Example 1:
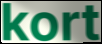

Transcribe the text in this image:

kort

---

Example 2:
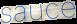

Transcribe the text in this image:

sauce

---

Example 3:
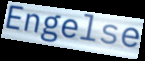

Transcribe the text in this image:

Engelse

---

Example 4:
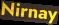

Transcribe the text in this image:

Nirnay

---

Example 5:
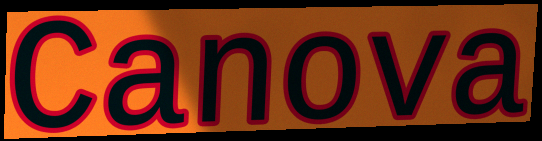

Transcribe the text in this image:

Canova